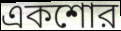
একশোর